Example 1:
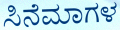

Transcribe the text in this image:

ಸಿನೆಮಾಗಳ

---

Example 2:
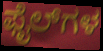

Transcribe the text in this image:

ಫೈಲ್‌ಗಳ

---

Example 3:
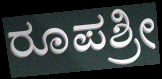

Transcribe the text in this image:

ರೂಪಶ್ರೀ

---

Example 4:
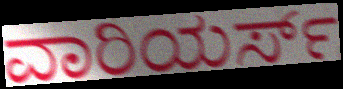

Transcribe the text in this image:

ವಾರಿಯರ್ಸ್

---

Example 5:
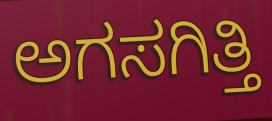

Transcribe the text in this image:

ಅಗಸಗಿತ್ತಿ